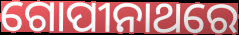
ଗୋପୀନାଥରେ